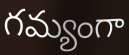
గమ్యంగా